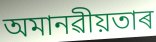
অমানৱীয়তাৰ